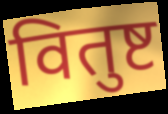
वितुष्ट